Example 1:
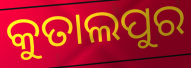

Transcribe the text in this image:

କୁତାଲପୁର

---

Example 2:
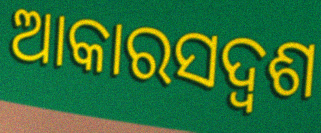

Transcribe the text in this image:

ଆକାରସଦ୍ୱଶ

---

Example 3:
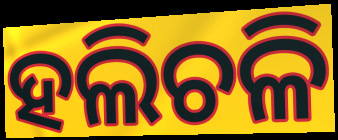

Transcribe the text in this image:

ହଲିଚଳି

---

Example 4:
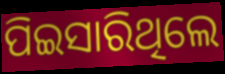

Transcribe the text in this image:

ପିଇସାରିଥିଲେ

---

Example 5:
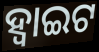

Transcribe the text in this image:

ହ୍ୱାଇଟ